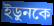
ইডুনকে